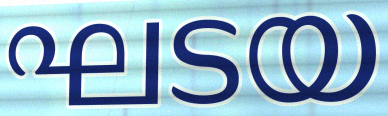
ഘടയ